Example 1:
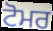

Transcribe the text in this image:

ਟੋਮਰ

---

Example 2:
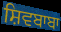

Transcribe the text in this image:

ਸ਼ਿਵਬਾਬਾ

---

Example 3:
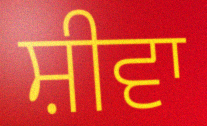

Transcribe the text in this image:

ਸ਼ੀਵਾ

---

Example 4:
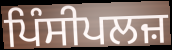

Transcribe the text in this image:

ਪਿੰਸੀਪਲਜ਼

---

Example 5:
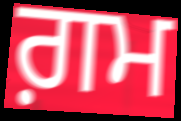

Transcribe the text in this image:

ਗ਼ਮ